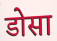
डोसा